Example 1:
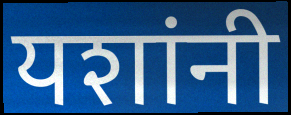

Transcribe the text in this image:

यशांनी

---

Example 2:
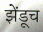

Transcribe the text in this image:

झेंडूच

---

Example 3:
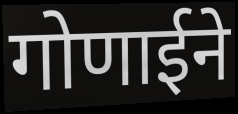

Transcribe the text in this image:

गोणाईने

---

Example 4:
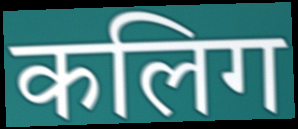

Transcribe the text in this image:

कलिग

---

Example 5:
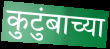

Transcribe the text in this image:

कुटुंबाच्या